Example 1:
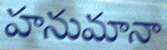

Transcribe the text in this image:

హనుమానా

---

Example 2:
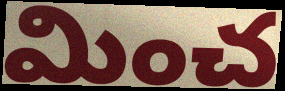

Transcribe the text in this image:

మించ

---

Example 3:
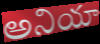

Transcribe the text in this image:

అనియా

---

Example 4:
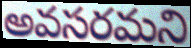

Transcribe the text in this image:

అవసరమని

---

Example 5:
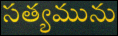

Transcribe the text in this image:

సత్యమును